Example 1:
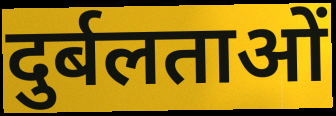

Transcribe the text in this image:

दुर्बलताओं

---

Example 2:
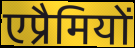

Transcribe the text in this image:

एप्रैमियों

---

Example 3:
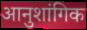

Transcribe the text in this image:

आनुशांगिक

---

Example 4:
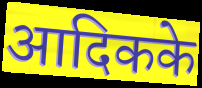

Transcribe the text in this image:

आदिकके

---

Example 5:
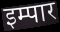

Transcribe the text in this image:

इम्पार